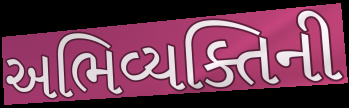
અભિવ્યક્તિની